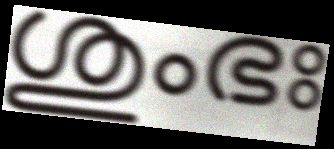
ശുംഭഃ